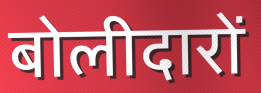
बोलीदारों